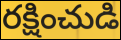
రక్షించుడి